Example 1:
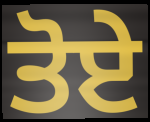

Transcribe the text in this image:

ਤੋਏ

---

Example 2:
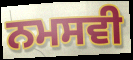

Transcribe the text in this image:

ਨਮਸਵੀ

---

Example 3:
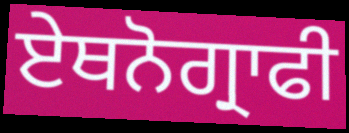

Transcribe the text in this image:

ਏਥਨੋਗ੍ਰਾਫੀ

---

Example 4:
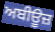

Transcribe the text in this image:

ਅਬੀਊਜ਼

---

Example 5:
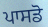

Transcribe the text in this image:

ਪਾਸਡੋ